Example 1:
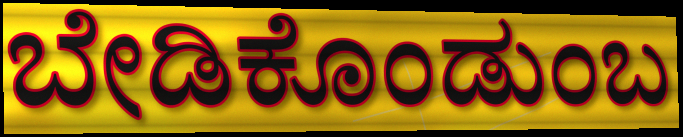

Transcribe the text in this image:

ಬೇಡಿಕೊಂಡುಂಬ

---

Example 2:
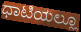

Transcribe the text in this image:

ಧಾಟಿಯಲ್ಲೂ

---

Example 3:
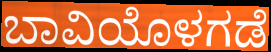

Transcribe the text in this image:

ಬಾವಿಯೊಳಗಡೆ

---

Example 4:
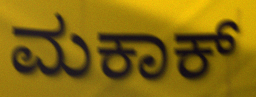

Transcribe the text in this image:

ಮಕಾಕ್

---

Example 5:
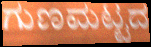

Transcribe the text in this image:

ಗುಣಮಟ್ಟದ